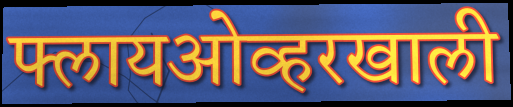
फ्लायओव्हरखाली